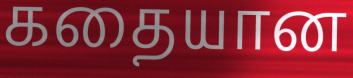
கதையான